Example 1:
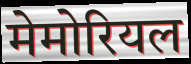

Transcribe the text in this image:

मेमोरियल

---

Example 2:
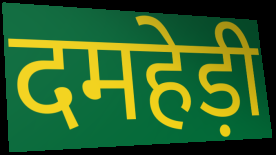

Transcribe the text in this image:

दमहेड़ी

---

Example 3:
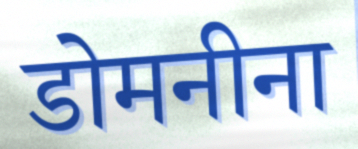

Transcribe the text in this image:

डोमनीना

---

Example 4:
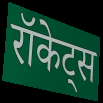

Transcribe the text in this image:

रॉकेट्स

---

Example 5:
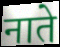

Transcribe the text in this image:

नाते